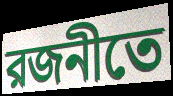
রজনীতে